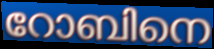
റോബിനെ